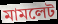
মামলেট